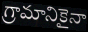
గ్రామానికైనా